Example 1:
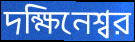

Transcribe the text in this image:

দক্ষিনেশ্বর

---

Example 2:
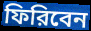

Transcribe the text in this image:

ফিরিবেন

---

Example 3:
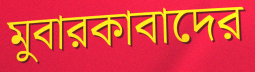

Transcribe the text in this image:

মুবারকাবাদের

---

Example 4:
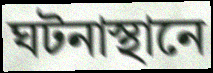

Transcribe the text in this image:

ঘটনাস্থানে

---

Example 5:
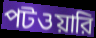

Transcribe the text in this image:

পটওয়ারি